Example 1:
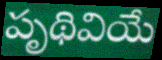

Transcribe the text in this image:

పృథివియే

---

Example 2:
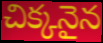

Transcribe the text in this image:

చిక్కనైన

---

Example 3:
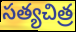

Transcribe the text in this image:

సత్యచిత్ర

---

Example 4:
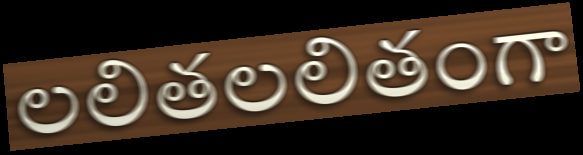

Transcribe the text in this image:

లలితలలితంగా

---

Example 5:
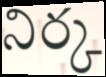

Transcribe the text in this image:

నిర్క